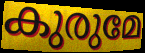
കുരുമേ